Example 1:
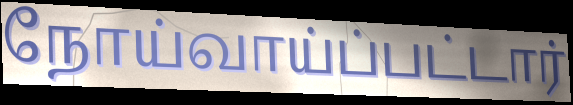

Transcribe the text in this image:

நோய்வாய்ப்பட்டார்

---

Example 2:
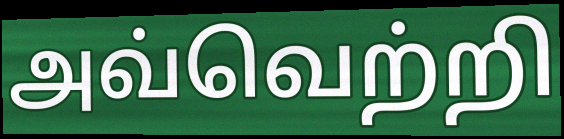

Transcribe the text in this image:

அவ்வெற்றி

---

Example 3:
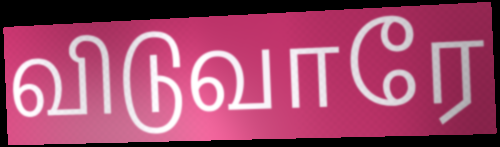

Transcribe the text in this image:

விடுவாரே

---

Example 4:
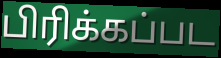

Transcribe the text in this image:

பிரிக்கப்பட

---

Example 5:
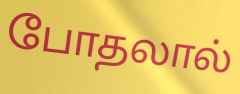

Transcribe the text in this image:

போதலால்